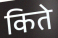
किते